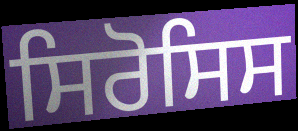
ਸਿਰੋਸਿਸ